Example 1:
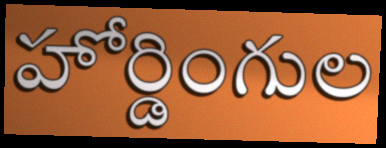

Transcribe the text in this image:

హోర్డింగుల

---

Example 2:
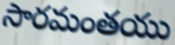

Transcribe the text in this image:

సారమంతయు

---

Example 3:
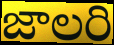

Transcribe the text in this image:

జాలరి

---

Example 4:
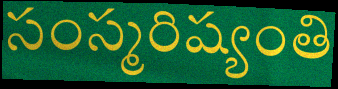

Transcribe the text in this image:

సంస్మరిష్యంతి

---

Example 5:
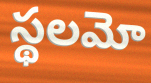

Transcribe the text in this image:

స్థలమో